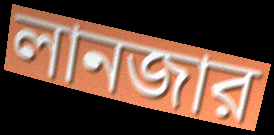
লানজার